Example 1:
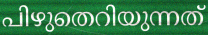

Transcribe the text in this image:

പിഴുതെറിയുന്നത്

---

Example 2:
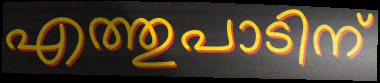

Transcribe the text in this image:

എത്തുപാടിന്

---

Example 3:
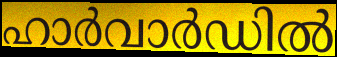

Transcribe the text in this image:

ഹാർവാർഡിൽ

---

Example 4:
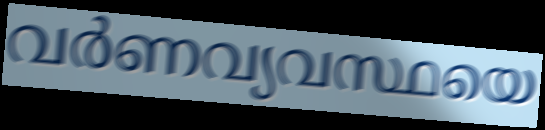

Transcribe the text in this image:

വർണവ്യവസ്ഥയെ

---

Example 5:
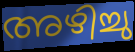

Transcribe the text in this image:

അഴിച്ചു